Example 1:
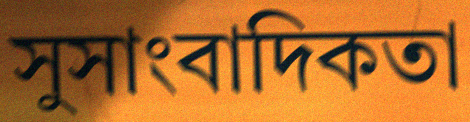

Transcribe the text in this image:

সুসাংবাদিকতা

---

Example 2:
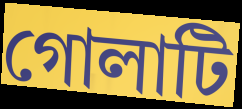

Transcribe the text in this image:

গোলাটি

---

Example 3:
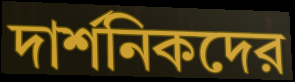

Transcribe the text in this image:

দার্শনিকদের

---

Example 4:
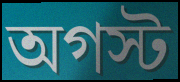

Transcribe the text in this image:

অগস্ট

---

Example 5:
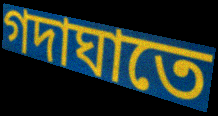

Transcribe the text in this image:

গদাঘাতে